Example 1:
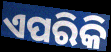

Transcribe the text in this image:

ଏପରିକି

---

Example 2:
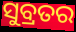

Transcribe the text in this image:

ସୁବ୍ରତର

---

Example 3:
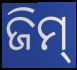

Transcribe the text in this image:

ଜିମ୍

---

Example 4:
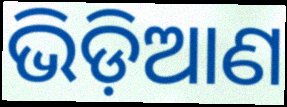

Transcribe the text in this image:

ଭିଡ଼ିଆଣ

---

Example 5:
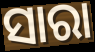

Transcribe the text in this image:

ସାରା